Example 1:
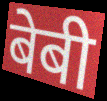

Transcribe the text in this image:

बेबी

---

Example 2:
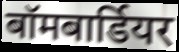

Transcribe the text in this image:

बॉमबार्डियर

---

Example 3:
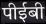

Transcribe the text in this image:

पीईबी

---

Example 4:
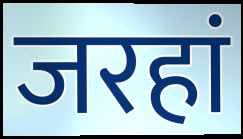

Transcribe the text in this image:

जरहां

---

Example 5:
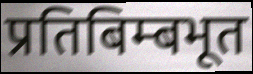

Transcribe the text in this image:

प्रतिबिम्बभूत